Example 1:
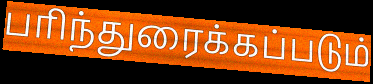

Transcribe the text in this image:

பரிந்துரைக்கப்படும்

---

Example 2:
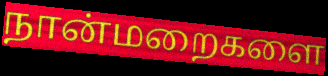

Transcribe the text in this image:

நான்மறைகளை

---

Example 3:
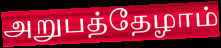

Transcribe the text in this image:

அறுபத்தேழாம்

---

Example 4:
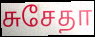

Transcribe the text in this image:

சுசேதா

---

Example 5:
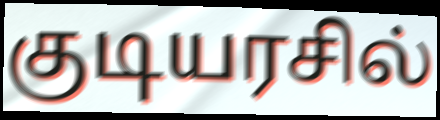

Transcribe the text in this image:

குடியரசில்